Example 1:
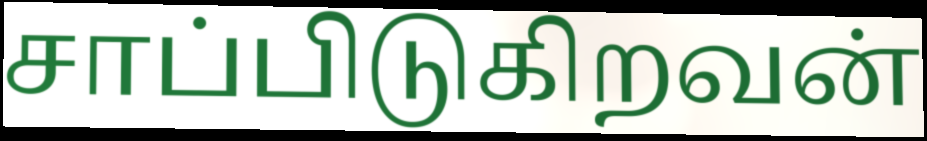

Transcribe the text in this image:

சாப்பிடுகிறவன்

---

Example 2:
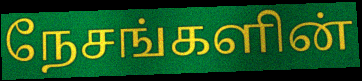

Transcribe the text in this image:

நேசங்களின்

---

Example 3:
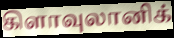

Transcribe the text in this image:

கிளாவுலானிக்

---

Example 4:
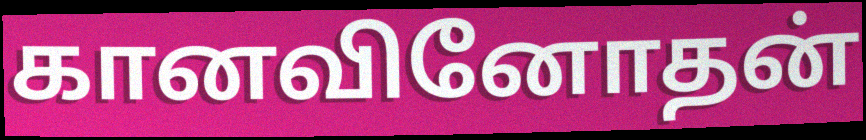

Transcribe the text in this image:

கானவினோதன்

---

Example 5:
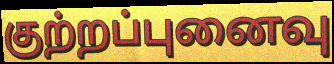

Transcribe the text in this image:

குற்றப்புனைவு